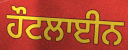
ਹੌਟਲਾਈਨ